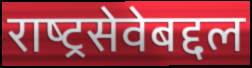
राष्ट्रसेवेबद्दल